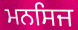
ਮਨਸਿਜ